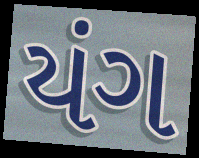
યંગ